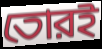
তোরই